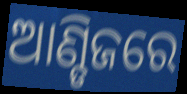
ଆଣ୍ଡିଜରେ